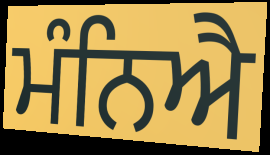
ਮੰਨਿਐ